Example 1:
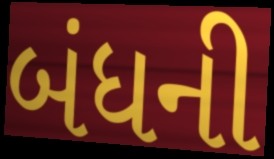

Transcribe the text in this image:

બંધની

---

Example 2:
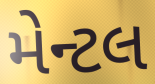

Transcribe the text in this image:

મેન્ટલ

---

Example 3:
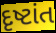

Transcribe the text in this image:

દૃષ્ટાંત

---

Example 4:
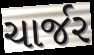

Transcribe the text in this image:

ચાર્જર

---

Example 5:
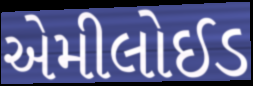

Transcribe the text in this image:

એમીલોઈડ